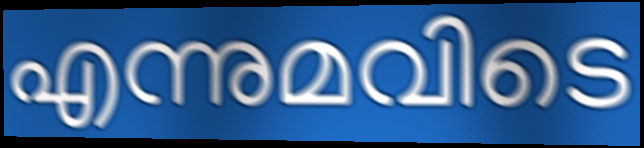
എന്നുമവിടെ